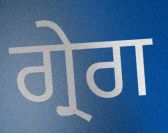
ਗ੍ਰੇਗ